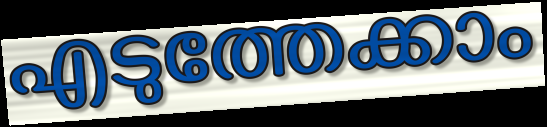
എടുത്തേക്കാം